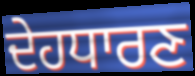
ਦੇਹਧਾਰਣ